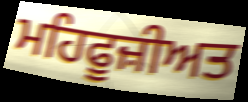
ਮਹਿਫੂਜ਼ੀਅਤ